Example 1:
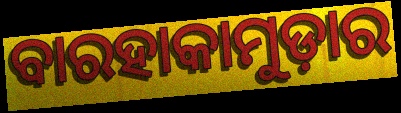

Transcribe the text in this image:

ବାରହାକାମୁଡ଼ାର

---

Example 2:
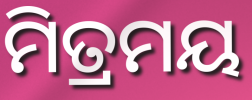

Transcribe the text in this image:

ମିତ୍ରମୟ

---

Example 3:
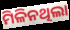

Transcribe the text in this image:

ମିଳିନଥିଲା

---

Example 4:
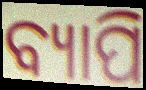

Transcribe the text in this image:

ବ୍ଯାପି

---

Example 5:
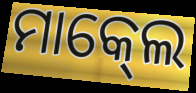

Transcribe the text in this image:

ମାକ୍‍ଲେ